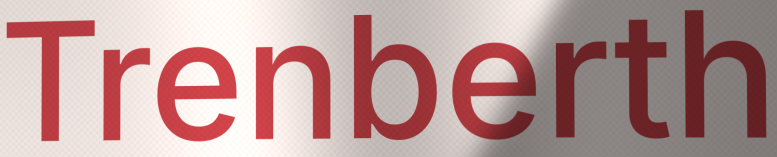
Trenberth